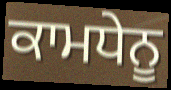
ਕਾਮਧੇਨੂ